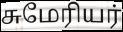
சுமேரியர்